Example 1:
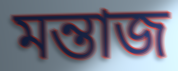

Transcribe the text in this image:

মন্তাজ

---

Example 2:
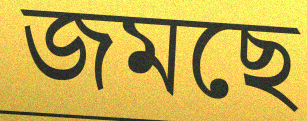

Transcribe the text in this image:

জমছে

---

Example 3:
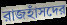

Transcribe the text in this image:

রাজহাঁসদের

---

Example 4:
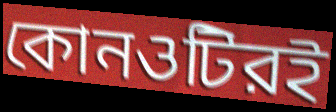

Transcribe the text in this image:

কোনওটিরই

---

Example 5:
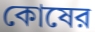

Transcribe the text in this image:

কোষের